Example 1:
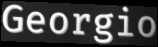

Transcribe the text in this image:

Georgio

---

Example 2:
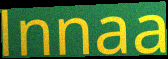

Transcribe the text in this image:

Innaa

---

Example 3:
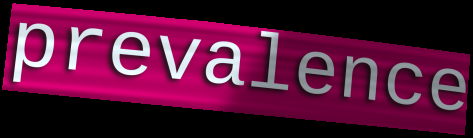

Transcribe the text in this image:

prevalence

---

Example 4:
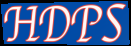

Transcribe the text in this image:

HDPS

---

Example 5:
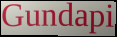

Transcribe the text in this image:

Gundapi